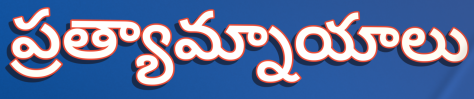
ప్రత్యామ్నాయాలు